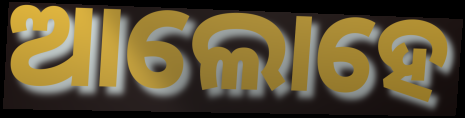
ଆଲୋହେ